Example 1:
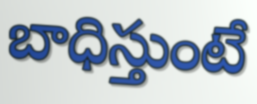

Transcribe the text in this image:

బాధిస్తుంటే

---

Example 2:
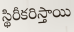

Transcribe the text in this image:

స్థిరీకరిస్తాయి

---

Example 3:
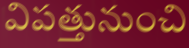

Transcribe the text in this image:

విపత్తునుంచి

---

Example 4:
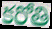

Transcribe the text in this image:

కరోతి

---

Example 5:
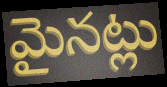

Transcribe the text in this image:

మైనట్లు